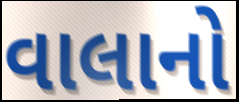
વાલાનો